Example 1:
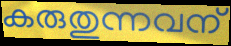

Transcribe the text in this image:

കരുതുന്നവന്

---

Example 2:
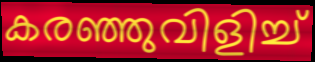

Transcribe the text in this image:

കരഞ്ഞുവിളിച്ച്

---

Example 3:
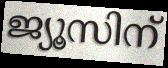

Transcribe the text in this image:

ജ്യൂസിന്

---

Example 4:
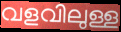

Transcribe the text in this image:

വളവിലുള്ള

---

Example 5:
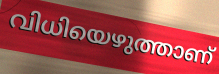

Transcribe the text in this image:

വിധിയെഴുത്താണ്